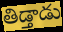
తిడ్తాడు